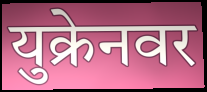
युक्रेनवर